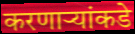
करणाऱ्यांकडे